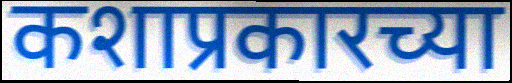
कशाप्रकारच्या